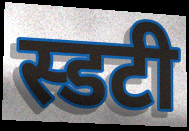
स्डटी